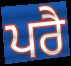
ਪਰੈ